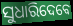
ସୁଧାରିଦେବେ